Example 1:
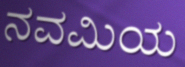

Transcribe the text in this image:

ನವಮಿಯ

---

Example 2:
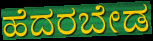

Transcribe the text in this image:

ಹೆದರಬೇಡ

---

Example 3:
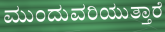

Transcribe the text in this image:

ಮುಂದುವರಿಯುತ್ತಾರೆ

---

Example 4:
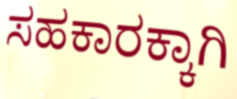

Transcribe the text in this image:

ಸಹಕಾರಕ್ಕಾಗಿ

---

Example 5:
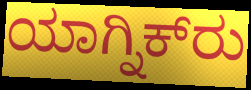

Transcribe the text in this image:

ಯಾಗ್ನಿಕ್‍ರು